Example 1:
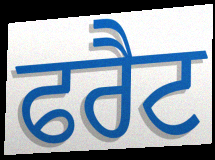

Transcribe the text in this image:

ਫਰੈਟ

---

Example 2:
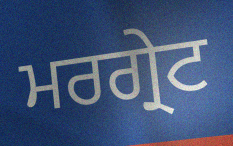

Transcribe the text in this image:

ਮਰਗ੍ਰੇਟ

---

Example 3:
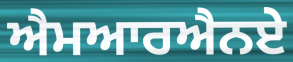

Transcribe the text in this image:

ਐਮਆਰਐਨਏ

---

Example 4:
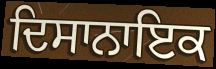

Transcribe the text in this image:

ਦਿਸਾਨਾਇਕ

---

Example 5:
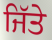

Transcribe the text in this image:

ਜਿੱਤੇ